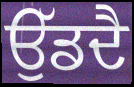
ਉੱਡਦੈ